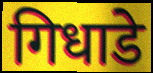
गिधाडे